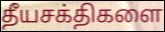
தீயசக்திகளை